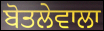
ਬੋਤਲੇਵਾਲਾ